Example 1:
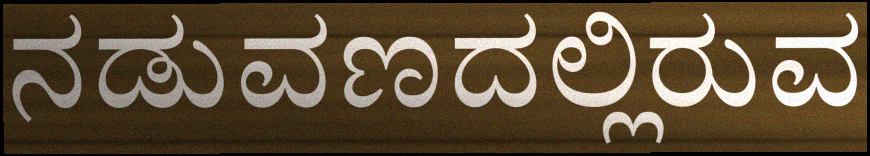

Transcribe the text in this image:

ನಡುವಣದಲ್ಲಿರುವ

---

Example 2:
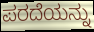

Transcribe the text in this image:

ಪರದೆಯನ್ನು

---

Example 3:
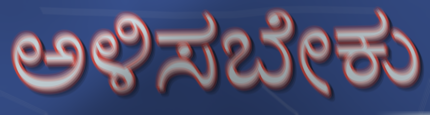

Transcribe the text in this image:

ಅಳಿಸಬೇಕು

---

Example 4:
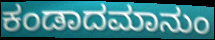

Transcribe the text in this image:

ಕಂಡಾದಮಾನುಂ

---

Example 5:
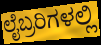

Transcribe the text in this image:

ಲೈಬ್ರರಿಗಳಲ್ಲಿ